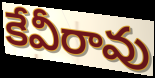
కేవీరావు